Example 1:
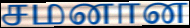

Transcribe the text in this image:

சமனான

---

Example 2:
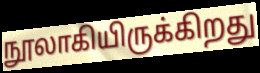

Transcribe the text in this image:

நூலாகியிருக்கிறது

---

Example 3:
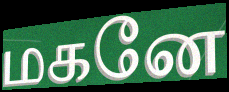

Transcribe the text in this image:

மகனே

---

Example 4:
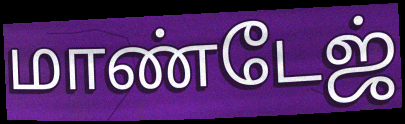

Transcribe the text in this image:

மாண்டேஜ்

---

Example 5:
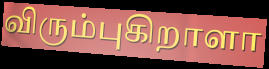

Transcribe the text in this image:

விரும்புகிறாளா